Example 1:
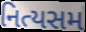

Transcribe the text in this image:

નિત્યસમ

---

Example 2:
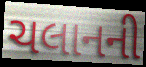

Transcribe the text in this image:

ચલાનની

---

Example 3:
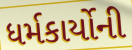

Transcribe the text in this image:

ધર્મકાર્યોની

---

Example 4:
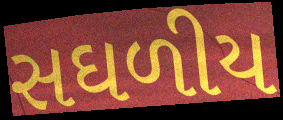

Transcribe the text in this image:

સઘળીય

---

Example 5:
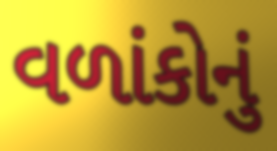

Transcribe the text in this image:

વળાંકોનું